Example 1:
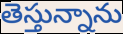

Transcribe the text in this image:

తెస్తున్నాను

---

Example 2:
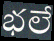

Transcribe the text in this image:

భలే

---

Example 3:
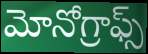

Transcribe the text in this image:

మోనోగ్రాఫ్స్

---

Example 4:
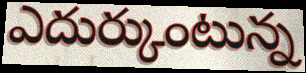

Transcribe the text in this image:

ఎదుర్కుంటున్న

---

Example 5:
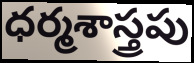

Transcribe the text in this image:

ధర్మశాస్త్రపు